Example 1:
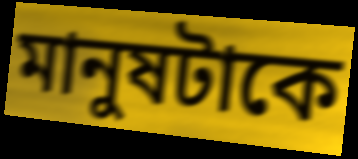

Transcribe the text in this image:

মানুষটাকে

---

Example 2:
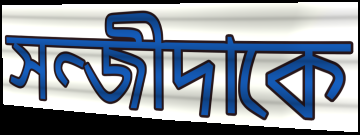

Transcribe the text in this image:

সন্জীদাকে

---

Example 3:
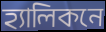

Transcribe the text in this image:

হ্যালিকনে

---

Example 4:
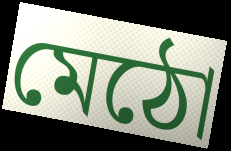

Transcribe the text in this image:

মেঠো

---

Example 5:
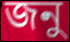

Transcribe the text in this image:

জনু